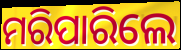
ମରିପାରିଲେ